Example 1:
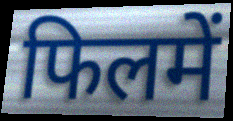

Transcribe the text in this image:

फिलमें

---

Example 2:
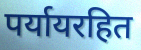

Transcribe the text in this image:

पर्यायरहित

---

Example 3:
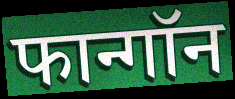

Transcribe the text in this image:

फान्गॉन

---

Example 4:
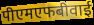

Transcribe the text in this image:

पीएमएफबीवाई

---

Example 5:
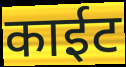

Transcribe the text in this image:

काईट